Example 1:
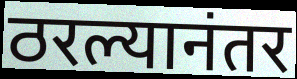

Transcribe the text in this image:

ठरल्यानंतर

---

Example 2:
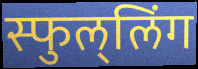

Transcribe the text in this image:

स्फुल्लिंग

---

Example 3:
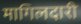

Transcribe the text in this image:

मागिलदारी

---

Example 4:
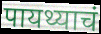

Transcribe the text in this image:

पायथ्याचं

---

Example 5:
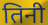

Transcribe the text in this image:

तिनी